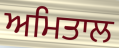
ਅਮਿਤਾਲ